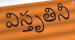
విస్తృతినీ